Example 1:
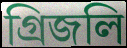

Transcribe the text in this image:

গ্রিজলি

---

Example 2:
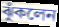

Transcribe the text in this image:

ঝুঁকলেন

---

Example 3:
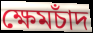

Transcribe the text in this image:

ক্ষেমচাঁদ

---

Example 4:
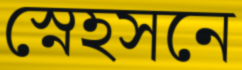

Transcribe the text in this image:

স্নেহসনে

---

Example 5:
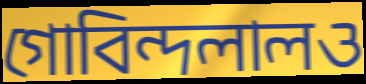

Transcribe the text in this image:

গোবিন্দলালও